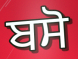
ਬਸੋ